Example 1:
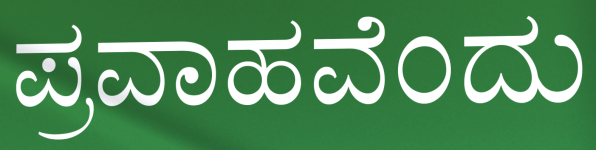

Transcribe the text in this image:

ಪ್ರವಾಹವೆಂದು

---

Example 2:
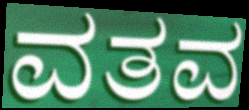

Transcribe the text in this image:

ವತವ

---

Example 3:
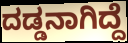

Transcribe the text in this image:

ದಡ್ಡನಾಗಿದ್ದೆ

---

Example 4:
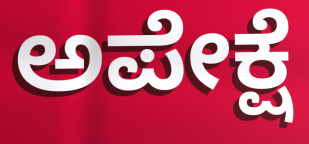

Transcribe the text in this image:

ಅಪೇಕ್ಷೆ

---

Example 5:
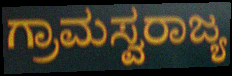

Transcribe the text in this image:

ಗ್ರಾಮಸ್ವರಾಜ್ಯ